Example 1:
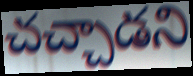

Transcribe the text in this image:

చచ్చాడని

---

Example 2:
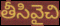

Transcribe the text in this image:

తీసివైచి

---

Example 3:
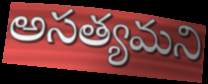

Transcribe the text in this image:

అసత్యమని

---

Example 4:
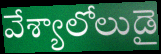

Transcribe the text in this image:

వేశ్యాలోలుడై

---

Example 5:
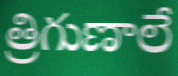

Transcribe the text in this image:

త్రిగుణాలే